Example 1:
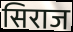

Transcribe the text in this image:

सिराज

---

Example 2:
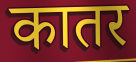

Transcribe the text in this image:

कातर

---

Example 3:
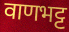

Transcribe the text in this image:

वाणभट्ट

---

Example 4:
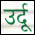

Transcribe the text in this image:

उर्दू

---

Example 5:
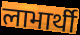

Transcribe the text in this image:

लाभार्थी